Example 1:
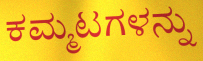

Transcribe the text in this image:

ಕಮ್ಮಟಗಳನ್ನು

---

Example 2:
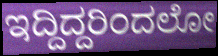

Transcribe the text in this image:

ಇದ್ದಿದ್ದರಿಂದಲೋ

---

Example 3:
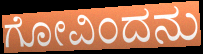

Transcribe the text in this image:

ಗೋವಿಂದನು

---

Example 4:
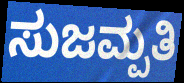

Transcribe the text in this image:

ಸುಜಮ್ಪತಿ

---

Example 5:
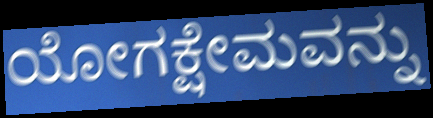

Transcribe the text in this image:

ಯೋಗಕ್ಷೇಮವನ್ನು